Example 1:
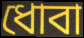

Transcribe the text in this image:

ধোবা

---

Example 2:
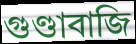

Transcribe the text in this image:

গুণ্ডাবাজি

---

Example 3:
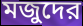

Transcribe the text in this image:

মজুদের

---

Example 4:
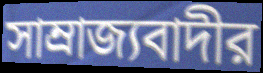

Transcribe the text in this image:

সাম্রাজ্যবাদীর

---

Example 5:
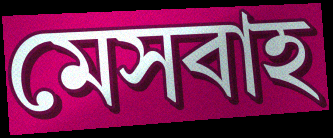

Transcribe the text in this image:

মেসবাহ